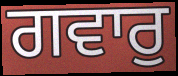
ਗਵਾਰੁ